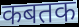
कबतक